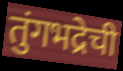
तुंगभद्रेची